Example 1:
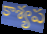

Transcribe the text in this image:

కాశ్యప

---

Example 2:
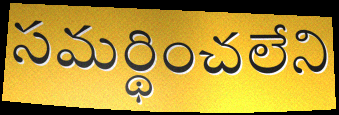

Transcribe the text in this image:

సమర్థించలేని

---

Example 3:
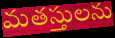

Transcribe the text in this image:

మతస్తులను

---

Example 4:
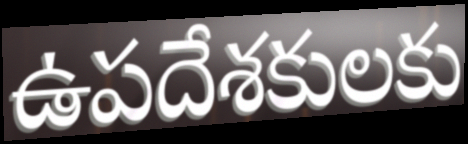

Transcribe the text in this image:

ఉపదేశకులకు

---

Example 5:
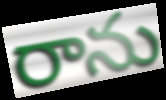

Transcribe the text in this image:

రాను